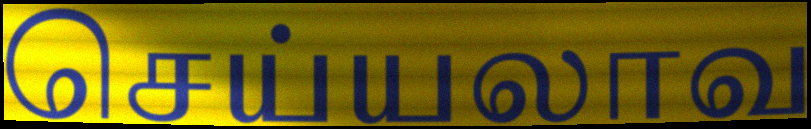
செய்யலாவ